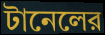
টানেলের